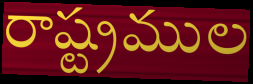
రాష్ట్రముల